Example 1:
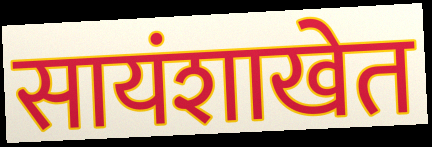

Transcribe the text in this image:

सायंशाखेत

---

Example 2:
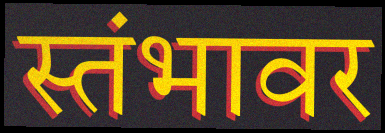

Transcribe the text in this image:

स्तंभावर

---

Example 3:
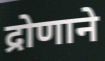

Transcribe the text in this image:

द्रोणाने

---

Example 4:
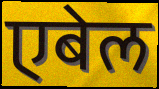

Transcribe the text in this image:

एबेल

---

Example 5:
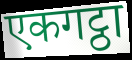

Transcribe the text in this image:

एकगट्ठा